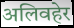
अलिवहेर